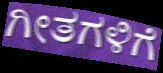
ಗೀತಗಳಿಗೆ